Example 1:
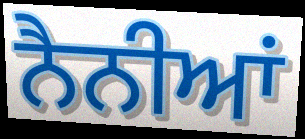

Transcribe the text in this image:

ਨੈਨੀਆਂ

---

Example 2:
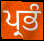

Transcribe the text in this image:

ਪ੍ਰਭੰ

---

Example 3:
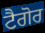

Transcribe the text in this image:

ਟੈਗੋਰ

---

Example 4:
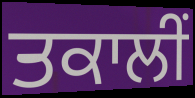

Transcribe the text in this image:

ਤਕਾਲੀਂ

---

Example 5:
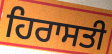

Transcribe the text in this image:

ਹਿਰਾਸਤੀ